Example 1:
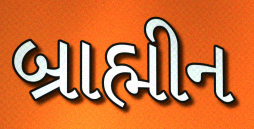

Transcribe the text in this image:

બ્રાહ્મીન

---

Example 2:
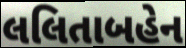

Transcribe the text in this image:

લલિતાબહેન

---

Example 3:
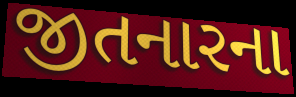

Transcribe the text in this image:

જીતનારના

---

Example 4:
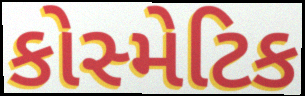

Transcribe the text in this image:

કોસ્મેટિક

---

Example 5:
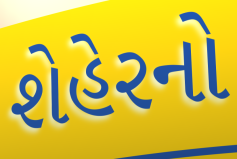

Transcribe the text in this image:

શેહેરનો